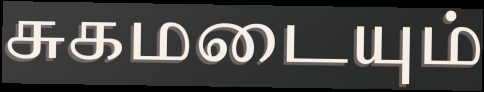
சுகமடையும்